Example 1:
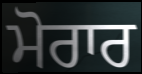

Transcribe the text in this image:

ਮੋਰਾਰ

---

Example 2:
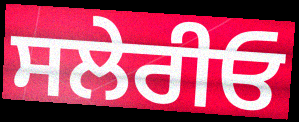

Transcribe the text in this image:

ਸਲੇਰੀਓ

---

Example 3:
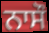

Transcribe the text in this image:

ਨਾਸੌ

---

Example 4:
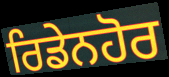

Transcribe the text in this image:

ਰਿਡੇਨਹੋਰ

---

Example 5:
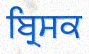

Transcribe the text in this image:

ਬ੍ਰਿਸਕ